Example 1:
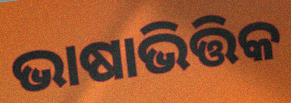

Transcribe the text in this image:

ଭାଷାଭିତ୍ତିକ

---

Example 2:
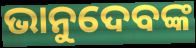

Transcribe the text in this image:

ଭାନୁଦେବଙ୍କ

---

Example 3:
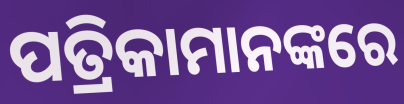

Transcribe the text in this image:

ପତ୍ରିକାମାନଙ୍କରେ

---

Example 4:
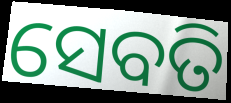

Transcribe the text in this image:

ସେବତି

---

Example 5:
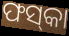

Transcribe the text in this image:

ଫସ୍‌କା